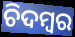
ଚିଦମ୍ବର